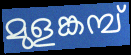
മുളങ്കമ്പ്